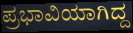
ಪ್ರಭಾವಿಯಾಗಿದ್ದ